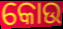
କୋଉ